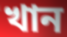
খান